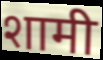
शामी